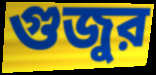
গুজুর